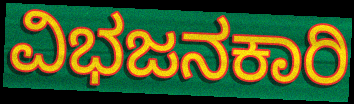
ವಿಭಜನಕಾರಿ